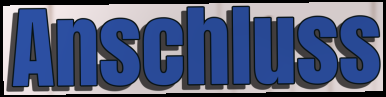
Anschluss